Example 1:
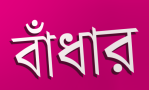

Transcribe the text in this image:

বাঁধার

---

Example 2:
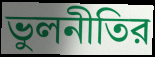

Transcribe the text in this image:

ভুলনীতির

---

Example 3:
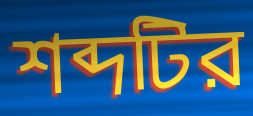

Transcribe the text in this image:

শব্দটির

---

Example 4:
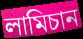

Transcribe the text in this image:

লামিচান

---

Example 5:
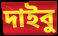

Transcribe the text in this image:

দাইবু